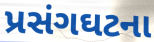
પ્રસંગઘટના